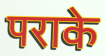
पराके